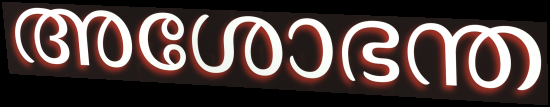
അശോഭന്ത